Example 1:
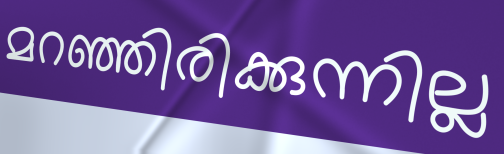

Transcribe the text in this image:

മറഞ്ഞിരിക്കുന്നില്ല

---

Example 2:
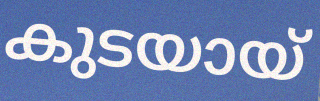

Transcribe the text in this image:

കുടയായ്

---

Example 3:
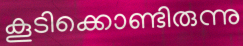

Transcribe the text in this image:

കൂടിക്കൊണ്ടിരുന്നു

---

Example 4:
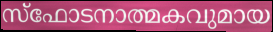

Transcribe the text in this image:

സ്ഫോടനാത്മകവുമായ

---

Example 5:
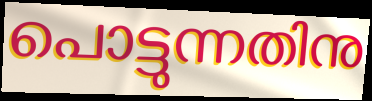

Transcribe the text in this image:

പൊട്ടുന്നതിനു